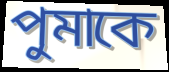
পুমাকে